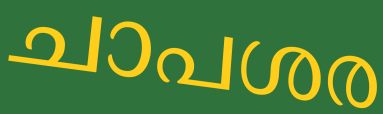
ചാപശര